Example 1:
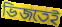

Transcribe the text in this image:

ভিজতেই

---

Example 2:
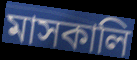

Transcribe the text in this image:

মাসকালি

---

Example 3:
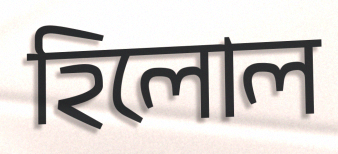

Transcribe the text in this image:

হিলোল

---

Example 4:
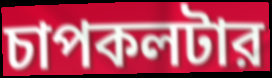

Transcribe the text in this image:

চাপকলটার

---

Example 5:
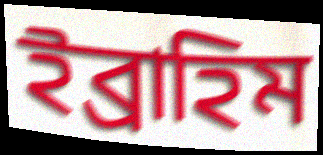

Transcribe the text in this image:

ইব্রাহিম